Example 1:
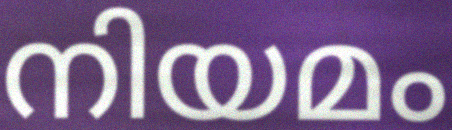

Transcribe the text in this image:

നിയമം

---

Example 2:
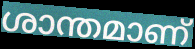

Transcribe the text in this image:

ശാന്തമാണ്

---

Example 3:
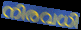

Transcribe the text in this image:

നിരവധി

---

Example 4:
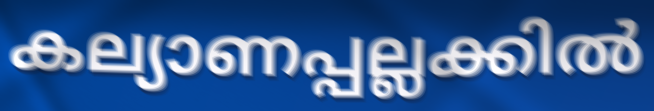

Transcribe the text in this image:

കല്യാണപ്പല്ലക്കിൽ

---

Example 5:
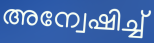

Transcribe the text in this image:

അന്വേഷിച്ച്